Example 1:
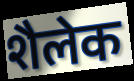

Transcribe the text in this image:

शैलेक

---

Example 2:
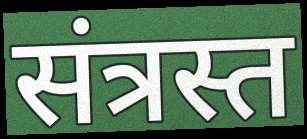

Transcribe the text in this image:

संत्रस्त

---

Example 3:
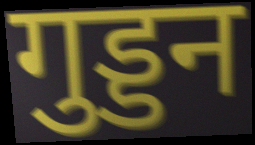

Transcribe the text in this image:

गुड्डन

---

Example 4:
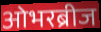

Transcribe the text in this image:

ओभरब्रीज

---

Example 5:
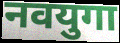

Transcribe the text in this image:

नवयुगा